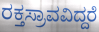
ರಕ್ತಸ್ರಾವವಿದ್ದರೆ